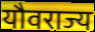
यौवराज्य